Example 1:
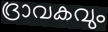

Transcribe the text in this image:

ദ്രാവകവും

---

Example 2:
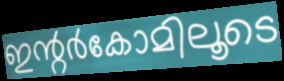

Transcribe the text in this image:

ഇന്റർകോമിലൂടെ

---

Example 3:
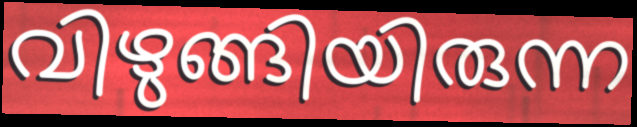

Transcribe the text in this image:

വിഴുങ്ങിയിരുന്ന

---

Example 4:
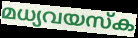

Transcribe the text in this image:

മധ്യവയസ്ക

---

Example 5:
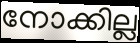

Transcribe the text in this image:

നോക്കില്ല